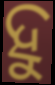
ହୁ